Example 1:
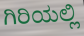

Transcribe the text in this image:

ಗಿರಿಯಲ್ಲಿ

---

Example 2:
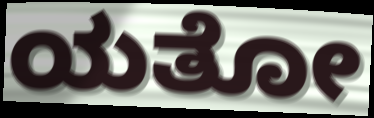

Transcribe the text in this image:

ಯತೋ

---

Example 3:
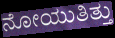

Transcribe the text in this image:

ನೋಯುತಿತ್ತು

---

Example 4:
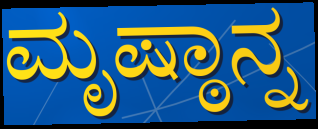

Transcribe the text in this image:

ಮೃಷ್ಠಾನ್ನ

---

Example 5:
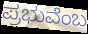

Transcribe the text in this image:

ಪ್ರಭುವೆಂಬ